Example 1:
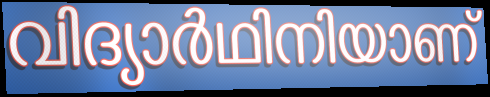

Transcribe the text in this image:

വിദ്യാർഥിനിയാണ്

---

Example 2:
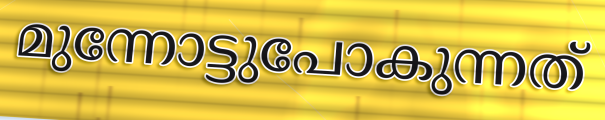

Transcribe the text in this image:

മുന്നോട്ടുപോകുന്നത്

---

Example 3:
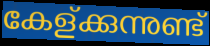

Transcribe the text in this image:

കേള്ക്കുന്നുണ്ട്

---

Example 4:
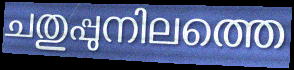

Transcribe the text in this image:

ചതുപ്പുനിലത്തെ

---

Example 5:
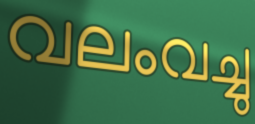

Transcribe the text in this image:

വലംവച്ചു